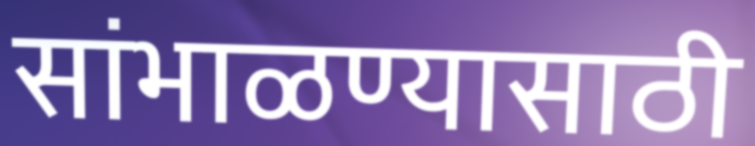
सांभाळण्यासाठी